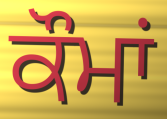
ਕੌਮਾਂ